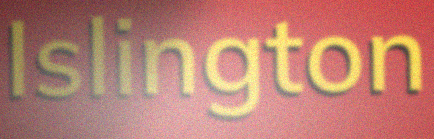
Islington